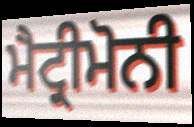
ਮੈਟ੍ਰੀਮੋਨੀ